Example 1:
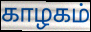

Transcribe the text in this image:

காழகம்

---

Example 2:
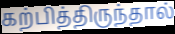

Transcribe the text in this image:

கற்பித்திருந்தால்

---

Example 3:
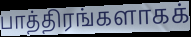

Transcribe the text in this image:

பாத்திரங்களாகக்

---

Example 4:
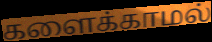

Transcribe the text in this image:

களைக்காமல்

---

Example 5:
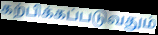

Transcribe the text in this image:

கற்பிக்கப்படுவதும்